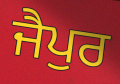
ਜੈਪੁਰ